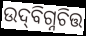
ଉଦ୍‌ବିଗ୍ନଚିତ୍ତ